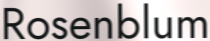
Rosenblum